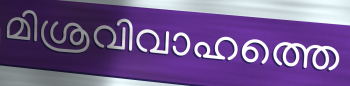
മിശ്രവിവാഹത്തെ